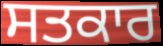
ਸਤਕਾਰ